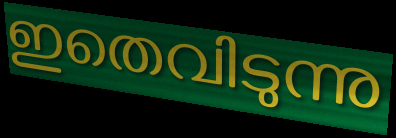
ഇതെവിടുന്നു